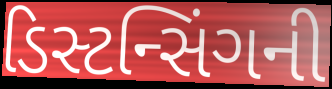
ડિસ્ટન્સિંગની